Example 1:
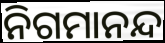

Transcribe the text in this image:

ନିଗମାନନ୍ଦ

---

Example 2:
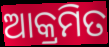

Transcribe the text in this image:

ଆକ୍ରମିତ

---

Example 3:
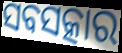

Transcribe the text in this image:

ସବସତ୍କାର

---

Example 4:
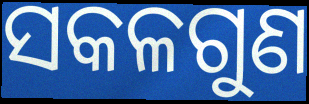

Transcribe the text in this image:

ସକଳଗୁଣ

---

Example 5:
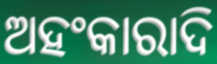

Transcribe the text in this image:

ଅହଂକାରାଦି